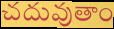
చదువుతాం